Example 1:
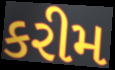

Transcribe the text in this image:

કરીમ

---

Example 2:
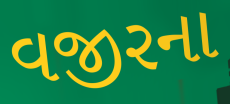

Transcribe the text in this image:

વજીરના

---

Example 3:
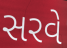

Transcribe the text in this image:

સરવે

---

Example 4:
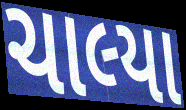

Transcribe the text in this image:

ચાલ્યા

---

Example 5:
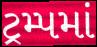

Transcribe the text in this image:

ટ્રમ્પમાં